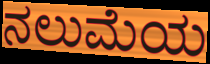
ನಲುಮೆಯ